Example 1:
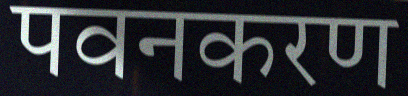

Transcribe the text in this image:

पवनकरण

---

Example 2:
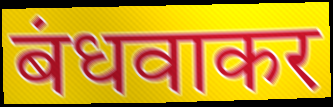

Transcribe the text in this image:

बंधवाकर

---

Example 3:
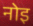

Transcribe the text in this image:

नोइ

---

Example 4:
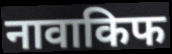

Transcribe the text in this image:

नावाकिफ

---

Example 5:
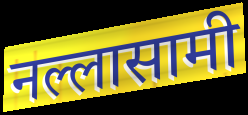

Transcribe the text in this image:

नल्लासामी